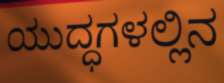
ಯುದ್ಧಗಳಲ್ಲಿನ